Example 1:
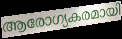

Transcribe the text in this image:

ആരോഗ്യകരമായി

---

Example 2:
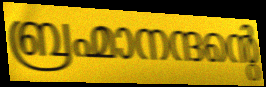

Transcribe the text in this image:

ബ്രഹ്മാനന്ദന്റെ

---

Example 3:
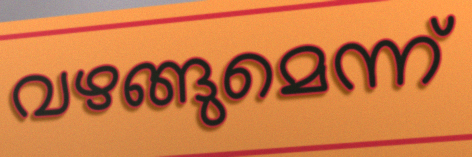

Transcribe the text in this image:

വഴങ്ങുമെന്ന്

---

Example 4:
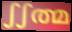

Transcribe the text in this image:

ഽഽത്മ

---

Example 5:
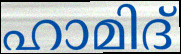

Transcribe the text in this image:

ഹാമിദ്